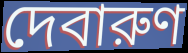
দেবারুণ